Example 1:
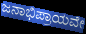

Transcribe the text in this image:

ಜನಾಭಿಪ್ರಾಯವೇ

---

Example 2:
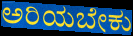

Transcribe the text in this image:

ಅರಿಯಬೇಕು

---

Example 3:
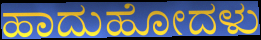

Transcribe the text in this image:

ಹಾದುಹೋದಳು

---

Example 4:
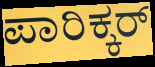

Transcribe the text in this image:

ಪಾರಿಕ್ಕರ್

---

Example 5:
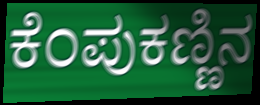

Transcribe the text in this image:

ಕೆಂಪುಕಣ್ಣಿನ